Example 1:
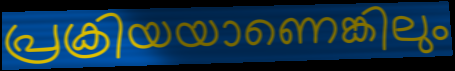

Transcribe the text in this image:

പ്രക്രിയയാണെങ്കിലും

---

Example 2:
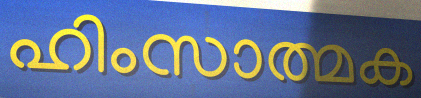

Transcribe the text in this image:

ഹിംസാത്മക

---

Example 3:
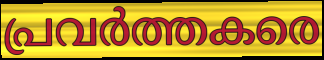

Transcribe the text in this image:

പ്രവർത്തകരെ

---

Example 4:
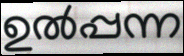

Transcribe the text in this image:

ഉൽപ്പന്ന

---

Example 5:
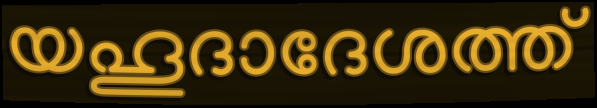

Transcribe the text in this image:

യഹൂദാദേശത്ത്